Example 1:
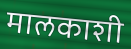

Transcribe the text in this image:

मालकाशी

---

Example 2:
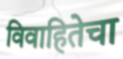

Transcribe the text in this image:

विवाहितेचा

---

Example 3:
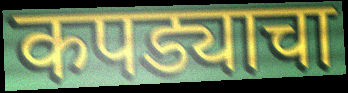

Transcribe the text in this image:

कपड्याचा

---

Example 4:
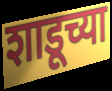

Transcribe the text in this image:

शाडूच्या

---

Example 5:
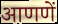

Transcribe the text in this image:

आणणें